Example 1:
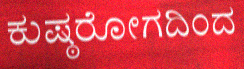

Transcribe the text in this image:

ಕುಷ್ಠರೋಗದಿಂದ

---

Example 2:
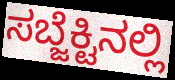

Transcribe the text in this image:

ಸಬ್ಜೆಕ್ಟಿನಲ್ಲಿ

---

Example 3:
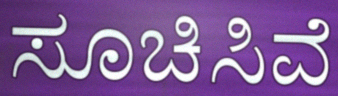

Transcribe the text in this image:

ಸೂಚಿಸಿವೆ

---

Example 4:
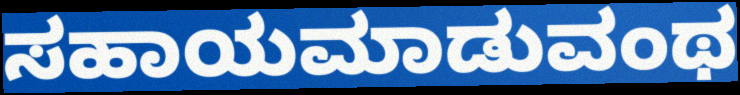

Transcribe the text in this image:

ಸಹಾಯಮಾಡುವಂಥ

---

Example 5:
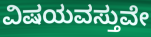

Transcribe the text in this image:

ವಿಷಯವಸ್ತುವೇ